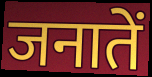
जनातें